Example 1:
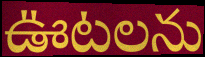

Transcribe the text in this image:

ఊటలను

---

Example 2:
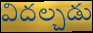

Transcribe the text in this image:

విదల్చడు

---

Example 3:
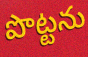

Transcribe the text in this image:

పొట్టను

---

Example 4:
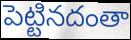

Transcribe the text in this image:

పెట్టినదంతా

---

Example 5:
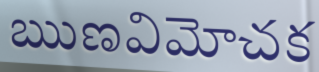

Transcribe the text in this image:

ఋణవిమోచక